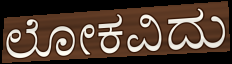
ಲೋಕವಿದು